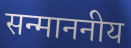
सन्माननीय